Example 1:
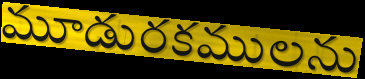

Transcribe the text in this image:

మూడురకములను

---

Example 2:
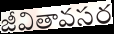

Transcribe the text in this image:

జీవితావసర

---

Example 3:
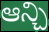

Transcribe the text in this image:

ఆన్చి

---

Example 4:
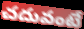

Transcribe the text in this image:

చదువంటే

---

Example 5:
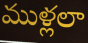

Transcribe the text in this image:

ముళ్లలా